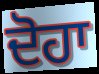
ਦੋਹਾ